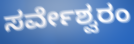
ಸರ್ವೇಶ್ವರಂ